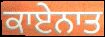
ਕਾਏਨਾਤ